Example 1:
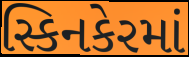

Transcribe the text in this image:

સ્કિનકેરમાં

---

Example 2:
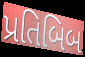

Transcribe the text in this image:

પ્રતિબિબ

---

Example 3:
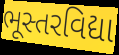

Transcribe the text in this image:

ભૂસ્તરવિદ્યા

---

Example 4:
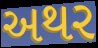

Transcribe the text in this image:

અથર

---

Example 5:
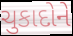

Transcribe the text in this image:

ચુકાદોને